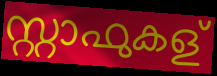
സ്റ്റാഫുകള്